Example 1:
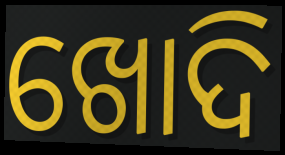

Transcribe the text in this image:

ଖୋଦି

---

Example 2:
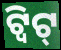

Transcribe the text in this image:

ଟ୍ୱିଟ୍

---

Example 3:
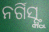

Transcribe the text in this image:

ନର୍ଗିସ୍ଙ୍କୁ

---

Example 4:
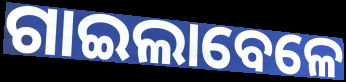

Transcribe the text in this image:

ଗାଇଲାବେଳେ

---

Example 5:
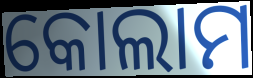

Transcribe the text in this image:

କୋଲାମ